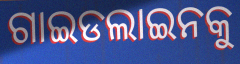
ଗାଇଡଲାଇନକୁ